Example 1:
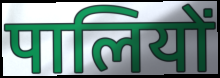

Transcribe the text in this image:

पालियों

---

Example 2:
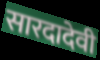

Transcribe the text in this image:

सारदादेवी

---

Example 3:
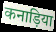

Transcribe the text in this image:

कनाड़िया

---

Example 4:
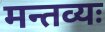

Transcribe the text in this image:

मन्तव्यः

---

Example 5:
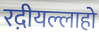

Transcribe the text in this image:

रद़ीयल्लाहो